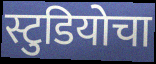
स्टुडियोचा